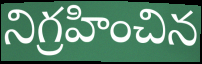
నిగ్రహించిన